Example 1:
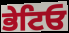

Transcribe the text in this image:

ਭੇਟਿਓ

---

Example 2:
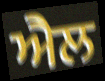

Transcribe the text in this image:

ਐਲ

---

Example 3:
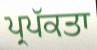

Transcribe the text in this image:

ਪ੍ਰਪੱਕਤਾ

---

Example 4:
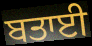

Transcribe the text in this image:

ਬਤਾਈ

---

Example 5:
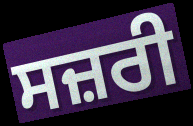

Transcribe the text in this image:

ਸਜ਼ਰੀ